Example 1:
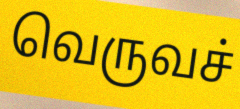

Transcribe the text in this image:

வெருவச்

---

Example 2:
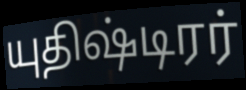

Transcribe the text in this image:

யுதிஷ்டிரர்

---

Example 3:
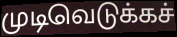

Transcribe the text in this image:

முடிவெடுக்கச்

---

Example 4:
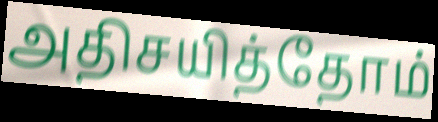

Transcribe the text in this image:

அதிசயித்தோம்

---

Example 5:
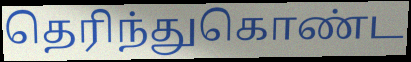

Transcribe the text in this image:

தெரிந்துகொண்ட